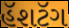
હૅશટૅગ